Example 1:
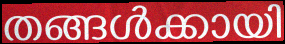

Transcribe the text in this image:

തങ്ങൾക്കായി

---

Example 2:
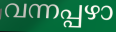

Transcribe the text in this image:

വന്നപ്പഴാ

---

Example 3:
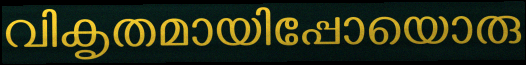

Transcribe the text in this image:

വികൃതമായിപ്പോയൊരു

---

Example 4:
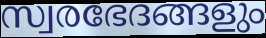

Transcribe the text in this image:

സ്വരഭേദങ്ങളും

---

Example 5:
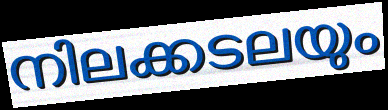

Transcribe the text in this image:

നിലക്കടലയും